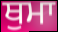
ਥੁਮਾ